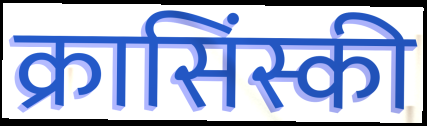
क्रासिंस्की